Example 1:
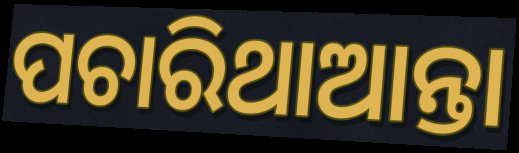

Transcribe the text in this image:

ପଚାରିଥାଆନ୍ତା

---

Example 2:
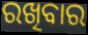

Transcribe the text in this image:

ରଖିବାର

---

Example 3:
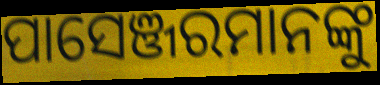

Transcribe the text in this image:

ପାସେଞ୍ଜରମାନଙ୍କୁ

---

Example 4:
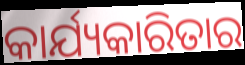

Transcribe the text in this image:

କାର୍ଯ୍ୟକାରିତାର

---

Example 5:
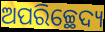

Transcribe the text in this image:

ଅପରିଚ୍ଛେଦ୍ୟ